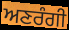
ਅਣਰੰਗੀ